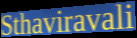
Sthaviravali